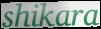
shikara